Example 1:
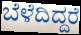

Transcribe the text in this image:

ಬೆಳೆದಿದ್ದರೆ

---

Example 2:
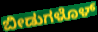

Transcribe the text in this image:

ಬೀಡುಗಳೊಳ್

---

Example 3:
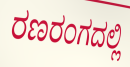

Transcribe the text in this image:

ರಣರಂಗದಲ್ಲಿ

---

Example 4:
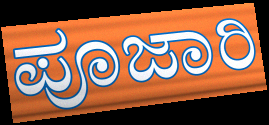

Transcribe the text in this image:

ಪೂಜಾರಿ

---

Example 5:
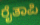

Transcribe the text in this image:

ರೈತಾಪಿ